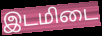
இடமிடை